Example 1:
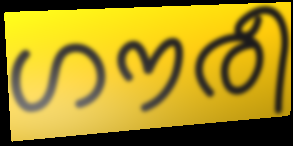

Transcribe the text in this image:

ഗൗരീ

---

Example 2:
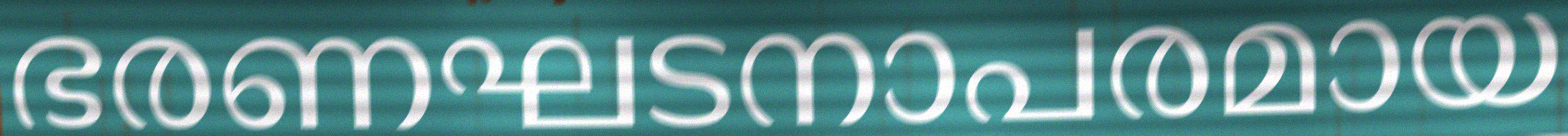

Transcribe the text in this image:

ഭരണഘടനാപരമായ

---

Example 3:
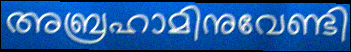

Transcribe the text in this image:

അബ്രഹാമിനുവേണ്ടി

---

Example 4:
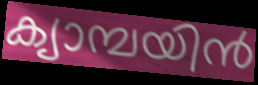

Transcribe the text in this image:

ക്യാമ്പയിൻ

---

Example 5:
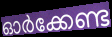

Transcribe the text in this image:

ഓർക്കേണ്ട